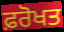
ਫ਼ਰੋਖਤ